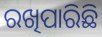
ରଖିପାରିଛି